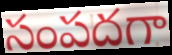
సంపదగా